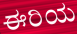
ಈರಿಯ